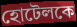
হোটেলকে